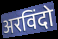
अरविंदो